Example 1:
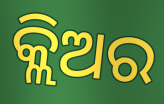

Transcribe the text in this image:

କ୍ଲିଅର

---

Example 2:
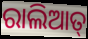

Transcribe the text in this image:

ରାଲିଆତ୍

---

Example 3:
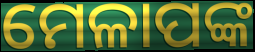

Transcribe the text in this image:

ମେଳାପଙ୍କ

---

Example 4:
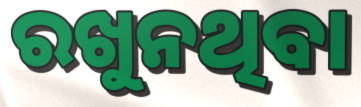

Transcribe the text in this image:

ରଖୁନଥିବା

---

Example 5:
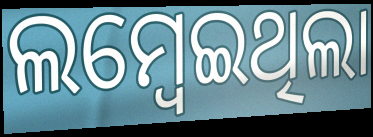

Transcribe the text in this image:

ଲମ୍ବେଇଥିଲା